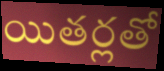
యితర్లతో